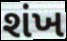
શંખ